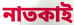
নাতকাই